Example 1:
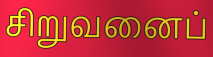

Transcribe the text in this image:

சிறுவனைப்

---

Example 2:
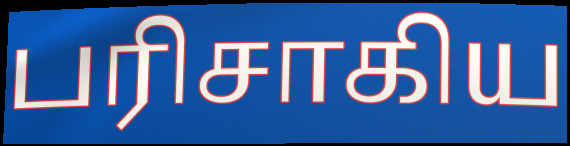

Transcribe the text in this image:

பரிசாகிய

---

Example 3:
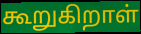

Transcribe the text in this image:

கூறுகிறாள்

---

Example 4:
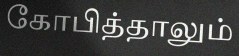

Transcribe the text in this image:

கோபித்தாலும்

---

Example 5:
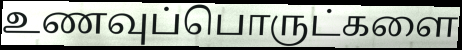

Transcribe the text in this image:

உணவுப்பொருட்களை